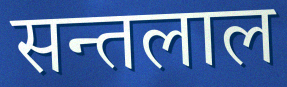
सन्तलाल